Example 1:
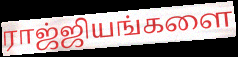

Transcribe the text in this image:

ராஜ்ஜியங்களை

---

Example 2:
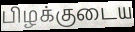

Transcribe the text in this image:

பிழக்குடைய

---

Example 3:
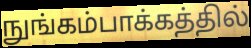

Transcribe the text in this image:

நுங்கம்பாக்கத்தில்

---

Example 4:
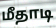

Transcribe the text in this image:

மீதாடி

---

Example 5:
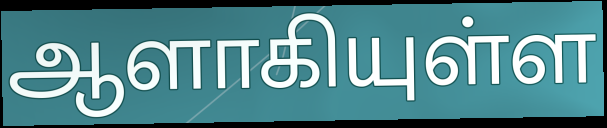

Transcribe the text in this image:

ஆளாகியுள்ள